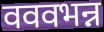
वववभन्न